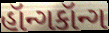
હૉન્ગકૉન્ગ